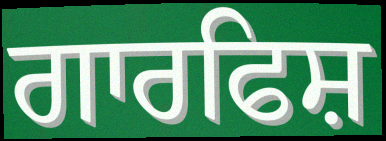
ਗਾਰਫਿਸ਼